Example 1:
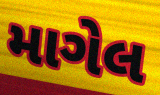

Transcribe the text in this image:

માગેલ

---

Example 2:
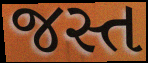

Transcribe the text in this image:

જસ્ત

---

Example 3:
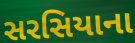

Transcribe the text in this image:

સરસિયાના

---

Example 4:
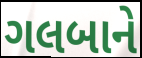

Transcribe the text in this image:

ગલબાને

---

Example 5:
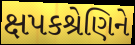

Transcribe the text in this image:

ક્ષપકશ્રેણિને